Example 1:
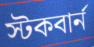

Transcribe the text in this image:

স্টকবার্ন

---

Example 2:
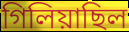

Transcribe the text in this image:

গিলিয়াছিল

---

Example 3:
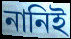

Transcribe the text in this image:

নানিই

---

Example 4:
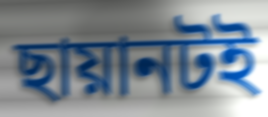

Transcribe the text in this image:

ছায়ানটই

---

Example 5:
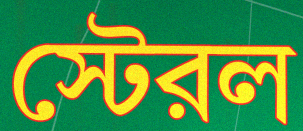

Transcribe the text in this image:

স্টেরল